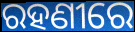
ରହଣୀରେ